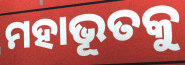
ମହାଭୂତକୁ